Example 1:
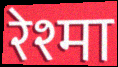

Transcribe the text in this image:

रेश्मा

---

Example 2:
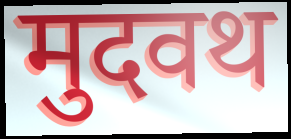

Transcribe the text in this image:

मुदवथ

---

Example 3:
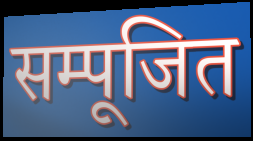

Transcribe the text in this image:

सम्पूजित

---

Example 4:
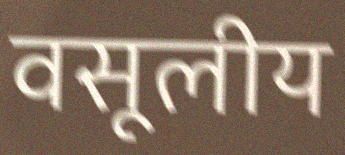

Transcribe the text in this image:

वसूलीय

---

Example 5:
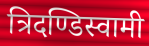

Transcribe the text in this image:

त्रिदण्डिस्वामी